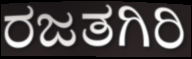
ರಜತಗಿರಿ